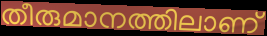
തീരുമാനത്തിലാണ്